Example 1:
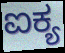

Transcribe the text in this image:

ಐಕ್ಯ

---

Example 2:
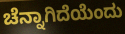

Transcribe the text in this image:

ಚೆನ್ನಾಗಿದೆಯೆಂದು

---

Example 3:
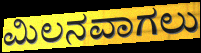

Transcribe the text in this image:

ಮಿಲನವಾಗಲು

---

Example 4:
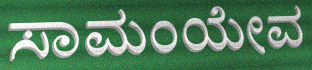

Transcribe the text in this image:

ಸಾಮಂಯೇವ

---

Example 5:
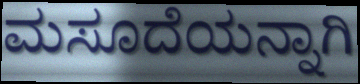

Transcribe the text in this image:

ಮಸೂದೆಯನ್ನಾಗಿ